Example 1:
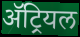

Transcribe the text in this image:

ॲट्रियल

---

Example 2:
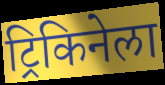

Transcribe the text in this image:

ट्रिकिनेला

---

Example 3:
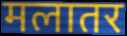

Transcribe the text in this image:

मलातर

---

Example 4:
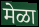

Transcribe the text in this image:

मेळा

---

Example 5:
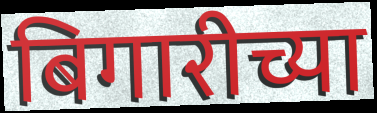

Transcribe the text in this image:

बिगारीच्या